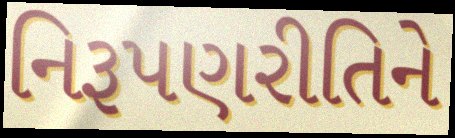
નિરૂપણરીતિને